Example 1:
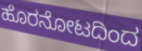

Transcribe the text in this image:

ಹೊರನೋಟದಿಂದ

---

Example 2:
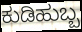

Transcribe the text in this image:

ಕುಡಿಹುಬ್ಬ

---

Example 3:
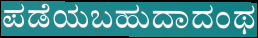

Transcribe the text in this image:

ಪಡೆಯಬಹುದಾದಂಥ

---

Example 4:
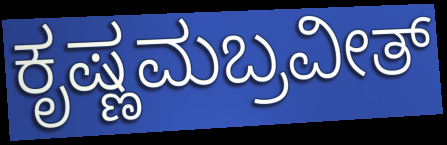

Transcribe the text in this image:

ಕೃಷ್ಣಮಬ್ರವೀತ್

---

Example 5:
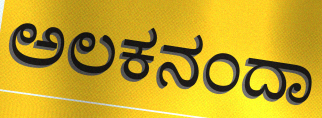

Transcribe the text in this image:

ಅಲಕನಂದಾ